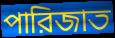
পারিজাত